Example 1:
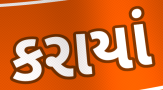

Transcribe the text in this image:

કરાયાં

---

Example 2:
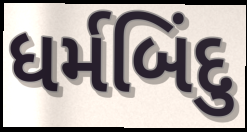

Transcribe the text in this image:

ધર્મબિંદુ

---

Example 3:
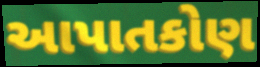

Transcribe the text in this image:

આપાતકોણ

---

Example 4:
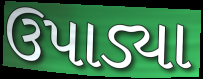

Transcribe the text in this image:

ઉપાડ્યા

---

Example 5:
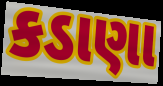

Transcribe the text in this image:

કડાણા